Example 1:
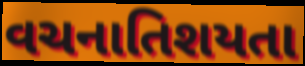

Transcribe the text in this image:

વચનાતિશયતા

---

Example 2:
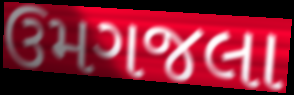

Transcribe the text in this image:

ઉમગજલા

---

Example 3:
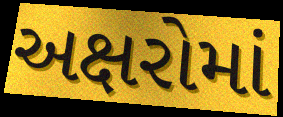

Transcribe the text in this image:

અક્ષરોમાં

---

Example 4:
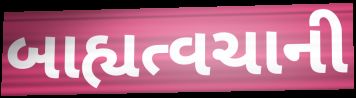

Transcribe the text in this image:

બાહ્યત્વચાની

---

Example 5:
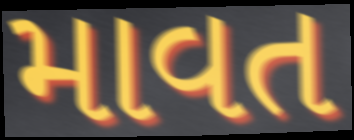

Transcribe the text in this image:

માવત